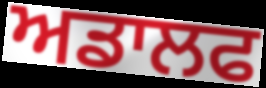
ਅਡਾਲਫ